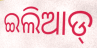
ଇଲିଆଡ୍